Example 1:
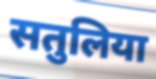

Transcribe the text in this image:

सतुलिया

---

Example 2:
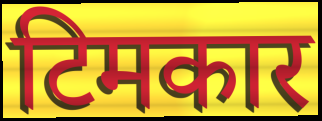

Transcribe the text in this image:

टिमकार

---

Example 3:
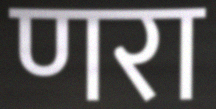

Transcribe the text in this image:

णरा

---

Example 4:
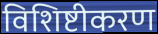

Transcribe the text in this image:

विशिष्टीकरण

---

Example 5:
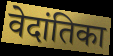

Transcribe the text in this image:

वेदांतिका